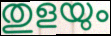
തുളയും